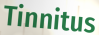
Tinnitus